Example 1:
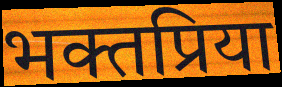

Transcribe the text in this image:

भक्तप्रिया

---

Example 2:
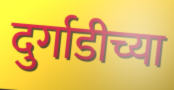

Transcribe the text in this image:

दुर्गाडीच्या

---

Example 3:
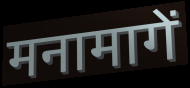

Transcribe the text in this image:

मनामागें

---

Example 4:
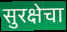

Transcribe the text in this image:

सुरक्षेचा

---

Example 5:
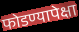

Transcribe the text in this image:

फोडण्यापेक्षा